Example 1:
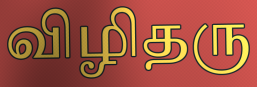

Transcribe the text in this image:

விழிதரு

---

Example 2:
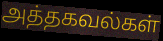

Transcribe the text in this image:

அத்தகவல்கள்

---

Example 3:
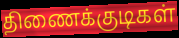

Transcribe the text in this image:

திணைக்குடிகள்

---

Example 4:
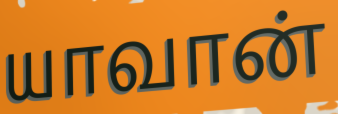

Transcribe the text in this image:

யாவான்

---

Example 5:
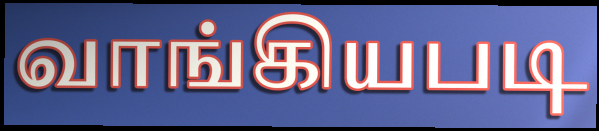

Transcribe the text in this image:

வாங்கியபடி